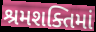
શ્રમશક્તિમાં